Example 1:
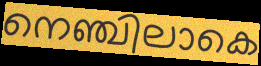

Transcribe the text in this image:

നെഞ്ചിലാകെ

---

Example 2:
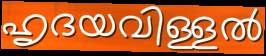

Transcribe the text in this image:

ഹൃദയവിള്ളൽ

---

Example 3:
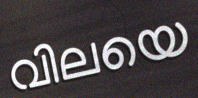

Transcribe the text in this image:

വിലയെ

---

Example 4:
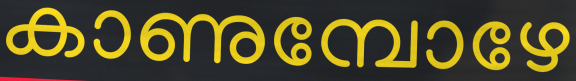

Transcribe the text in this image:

കാണുമ്പോഴേ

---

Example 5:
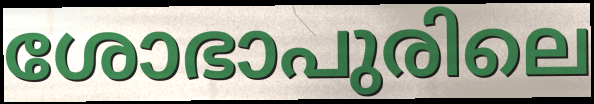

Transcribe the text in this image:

ശോഭാപുരിലെ